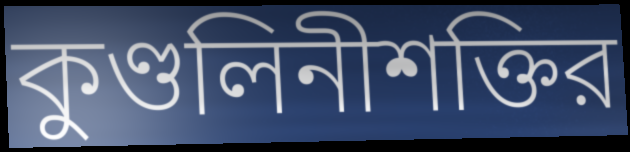
কুণ্ডলিনীশক্তির